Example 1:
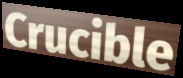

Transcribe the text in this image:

Crucible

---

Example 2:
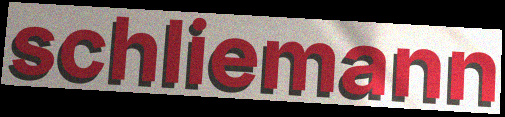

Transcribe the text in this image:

schliemann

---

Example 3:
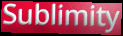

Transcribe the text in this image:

Sublimity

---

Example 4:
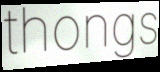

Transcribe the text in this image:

thongs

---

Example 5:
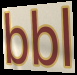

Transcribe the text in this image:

bbl